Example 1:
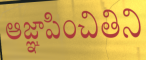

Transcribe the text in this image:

ఆజ్ఞాపించితిని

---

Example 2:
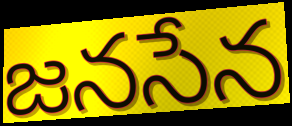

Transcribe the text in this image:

జనసేన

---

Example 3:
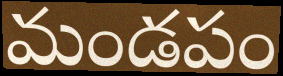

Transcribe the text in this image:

మండపం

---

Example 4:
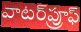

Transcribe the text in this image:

వాటర్‌ప్రూఫ్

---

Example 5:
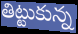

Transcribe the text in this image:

తిట్టుకున్న